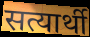
सत्यार्थी